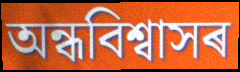
অন্ধবিশ্বাসৰ